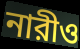
নারীও